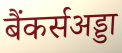
बैंकर्सअड्डा